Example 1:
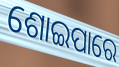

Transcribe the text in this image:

ଶୋଇପାରେ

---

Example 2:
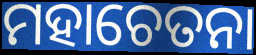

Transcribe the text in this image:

ମହାଚେତନା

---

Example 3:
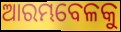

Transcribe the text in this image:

ଆରମ୍ଭବେଳକୁ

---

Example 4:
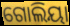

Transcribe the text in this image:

ଗୋଲିୟା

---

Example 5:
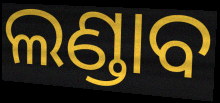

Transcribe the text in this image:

ଲଣ୍ଡାବ